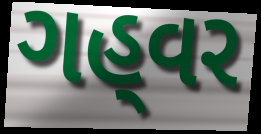
ગહ્‌વર